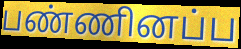
பண்ணினப்ப